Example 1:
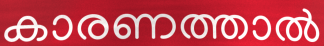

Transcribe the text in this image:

കാരണത്താൽ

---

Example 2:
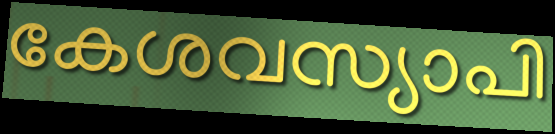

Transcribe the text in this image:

കേശവസ്യാപി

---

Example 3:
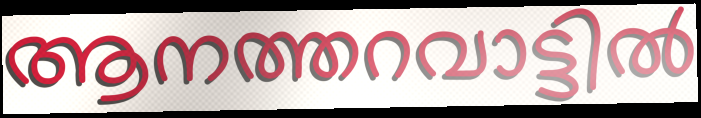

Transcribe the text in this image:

ആനത്തറവാട്ടിൽ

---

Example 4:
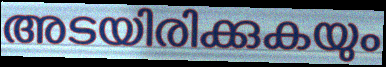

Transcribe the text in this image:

അടയിരിക്കുകയും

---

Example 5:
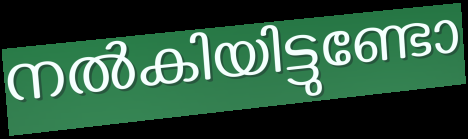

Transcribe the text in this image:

നൽകിയിട്ടുണ്ടോ